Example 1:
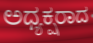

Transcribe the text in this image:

ಅಧ್ಯಕ್ಷರಾದ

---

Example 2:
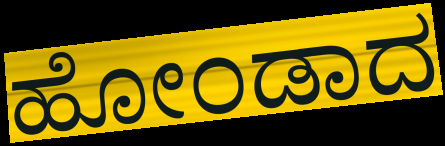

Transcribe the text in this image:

ಹೋಂಡಾದ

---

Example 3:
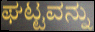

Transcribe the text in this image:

ಘಟ್ಟವನ್ನು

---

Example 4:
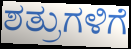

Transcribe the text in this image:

ಶತ್ರುಗಳಿಗೆ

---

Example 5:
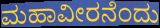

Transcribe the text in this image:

ಮಹಾವೀರನೆಂದು